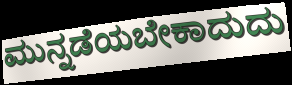
ಮುನ್ನಡೆಯಬೇಕಾದುದು